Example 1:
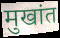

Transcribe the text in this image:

मुखांत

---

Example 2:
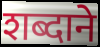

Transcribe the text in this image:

शब्दाने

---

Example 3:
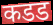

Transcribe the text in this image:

कडड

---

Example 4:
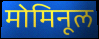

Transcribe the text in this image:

मोमिनूल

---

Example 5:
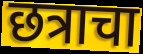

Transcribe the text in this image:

छत्राचा